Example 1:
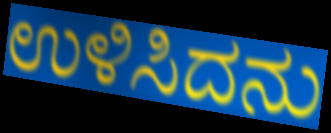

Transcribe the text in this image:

ಉಳಿಸಿದನು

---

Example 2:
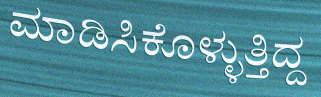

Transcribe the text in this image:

ಮಾಡಿಸಿಕೊಳ್ಳುತ್ತಿದ್ದ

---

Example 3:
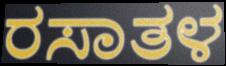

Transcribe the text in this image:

ರಸಾತಳ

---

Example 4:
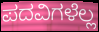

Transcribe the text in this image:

ಪದವಿಗಳೆಲ್ಲ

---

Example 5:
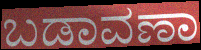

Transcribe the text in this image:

ಬಡಾವಣಾ